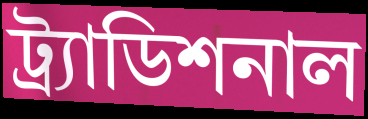
ট্র্যাডিশনাল